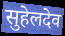
सुहेलदेव